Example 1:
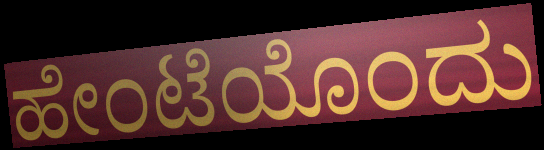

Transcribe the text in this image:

ಹೇಂಟೆಯೊಂದು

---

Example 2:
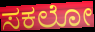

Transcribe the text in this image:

ಸಕಲೋ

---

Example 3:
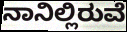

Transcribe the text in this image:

ನಾನಿಲ್ಲಿರುವೆ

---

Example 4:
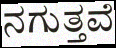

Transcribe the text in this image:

ನಗುತ್ತವೆ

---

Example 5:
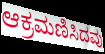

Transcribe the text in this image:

ಆಕ್ರಮಣಿಸಿದವು